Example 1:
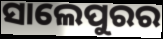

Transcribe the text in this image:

ସାଲେପୁରର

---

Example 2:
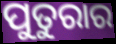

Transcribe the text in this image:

ପୁତୁରାର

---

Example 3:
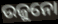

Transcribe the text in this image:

ଉଜୁନୋ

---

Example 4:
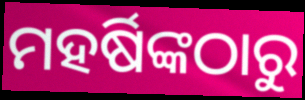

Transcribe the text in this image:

ମହର୍ଷିଙ୍କଠାରୁ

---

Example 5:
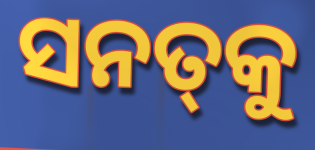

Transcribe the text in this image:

ସନତ୍‍କୁ